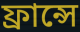
ফ্রান্সে